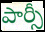
పార్సీ